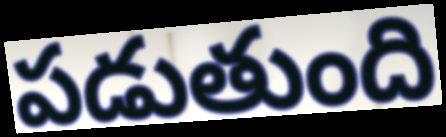
పడుతుంది